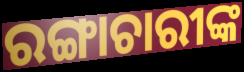
ରଙ୍ଗାଚାରୀଙ୍କ